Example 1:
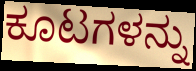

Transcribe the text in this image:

ಕೂಟಗಳನ್ನು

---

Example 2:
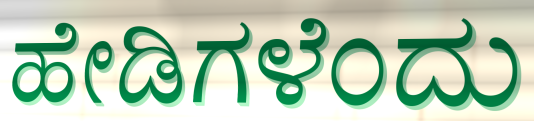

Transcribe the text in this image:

ಹೇಡಿಗಳೆಂದು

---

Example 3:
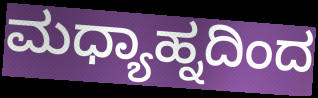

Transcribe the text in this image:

ಮಧ್ಯಾಹ್ನದಿಂದ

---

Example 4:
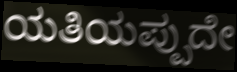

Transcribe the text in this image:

ಯತಿಯಪ್ಪುದೇ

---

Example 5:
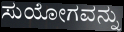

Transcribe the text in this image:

ಸುಯೋಗವನ್ನು